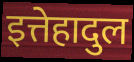
इत्तेहादुल